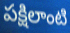
పక్షిలాంటి